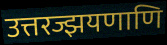
उत्तरज्झयणाणि